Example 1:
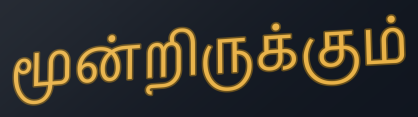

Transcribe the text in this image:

மூன்றிருக்கும்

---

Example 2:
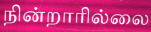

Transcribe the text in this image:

நின்றாரில்லை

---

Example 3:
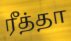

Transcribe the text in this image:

ரீத்தா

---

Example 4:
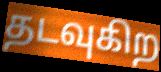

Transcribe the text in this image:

தடவுகிற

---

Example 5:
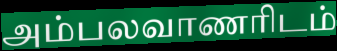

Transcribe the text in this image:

அம்பலவாணரிடம்